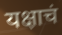
यक्षाचं